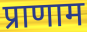
प्राणाम